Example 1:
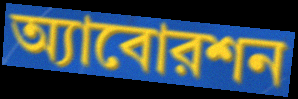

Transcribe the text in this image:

অ্যাবোরশন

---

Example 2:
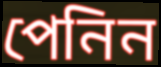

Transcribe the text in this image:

পেনিন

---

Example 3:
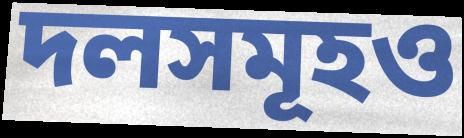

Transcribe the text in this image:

দলসমূহও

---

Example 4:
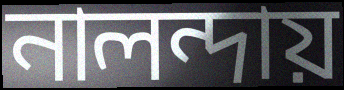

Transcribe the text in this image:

নালন্দায়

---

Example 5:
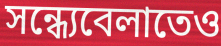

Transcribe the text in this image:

সন্ধ্যেবেলাতেও